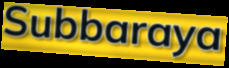
Subbaraya